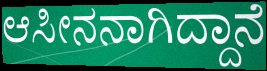
ಆಸೀನನಾಗಿದ್ದಾನೆ